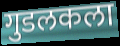
गुडलकला